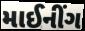
માઈનીંગ